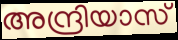
അന്ദ്രിയാസ്